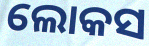
ଲୋକସ